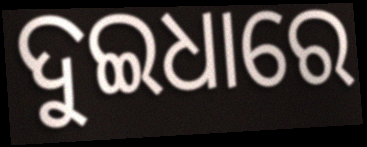
ଦୁଇଧାରେ